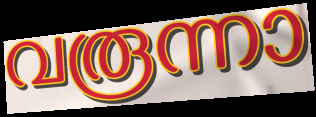
വരൂന്നാ